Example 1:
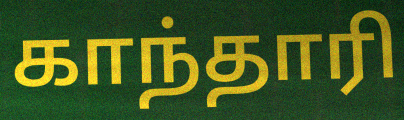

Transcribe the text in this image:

காந்தாரி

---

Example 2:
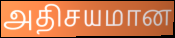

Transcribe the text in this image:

அதிசயமான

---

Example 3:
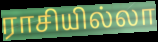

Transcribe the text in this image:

ராசியில்லா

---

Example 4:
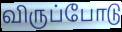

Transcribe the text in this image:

விருப்போடு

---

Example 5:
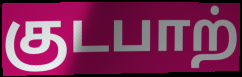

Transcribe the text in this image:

குடபாற்